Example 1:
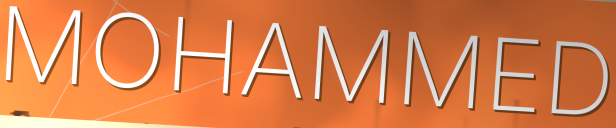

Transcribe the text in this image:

MOHAMMED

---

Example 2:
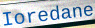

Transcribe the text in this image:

Ioredane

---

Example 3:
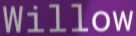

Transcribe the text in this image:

Willow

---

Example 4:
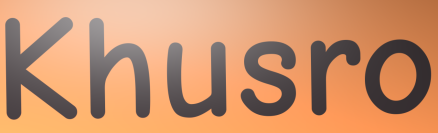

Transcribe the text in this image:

Khusro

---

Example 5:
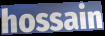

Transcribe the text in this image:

hossain